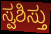
ಸ್ವಶಿಸ್ತು